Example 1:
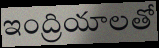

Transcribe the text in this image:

ఇంద్రియాలతో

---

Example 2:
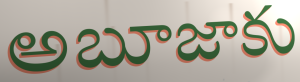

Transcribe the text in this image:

అబూజాకు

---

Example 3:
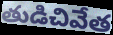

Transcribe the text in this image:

తుడిచివేత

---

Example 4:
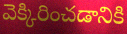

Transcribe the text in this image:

వెక్కిరించడానికి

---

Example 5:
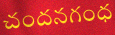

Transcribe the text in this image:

చందనగంధ